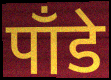
पाँडे